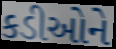
કડીઓને